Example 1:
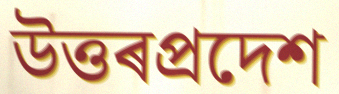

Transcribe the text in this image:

উত্তৰপ্ৰদেশ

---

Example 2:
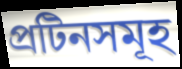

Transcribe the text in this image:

প্ৰটিনসমূহ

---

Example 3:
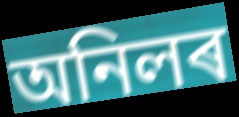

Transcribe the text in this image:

অনিলৰ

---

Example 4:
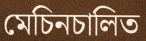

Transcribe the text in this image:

মেচিনচালিত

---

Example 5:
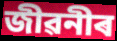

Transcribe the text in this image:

জীৱনীৰ